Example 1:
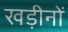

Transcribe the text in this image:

खड़ीनों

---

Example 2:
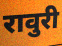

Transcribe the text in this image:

रावुरी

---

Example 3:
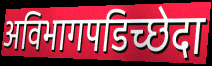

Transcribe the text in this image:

अविभागपडिच्छेदा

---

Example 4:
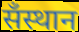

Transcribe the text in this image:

सँस्थान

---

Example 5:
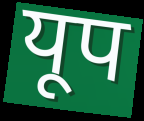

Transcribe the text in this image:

यूप